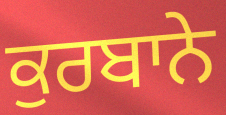
ਕੁਰਬਾਨੇ